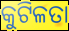
କୁଟିଳତା